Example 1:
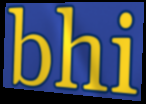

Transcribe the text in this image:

bhi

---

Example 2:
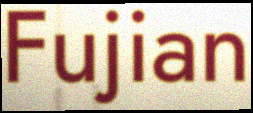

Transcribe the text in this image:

Fujian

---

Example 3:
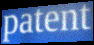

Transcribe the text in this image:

patent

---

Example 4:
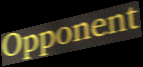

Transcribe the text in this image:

Opponent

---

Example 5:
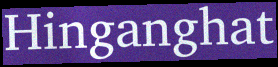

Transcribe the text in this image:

Hinganghat